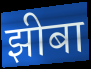
झीबा